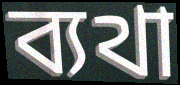
ব্যথা